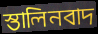
স্তালিনবাদ